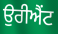
ਉਰੀਐਂਟ